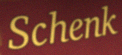
Schenk